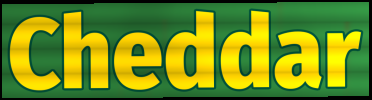
Cheddar